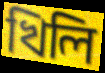
খিলি